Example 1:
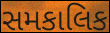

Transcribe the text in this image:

સમકાલિક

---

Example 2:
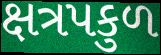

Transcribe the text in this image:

ક્ષત્રપકુળ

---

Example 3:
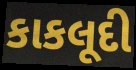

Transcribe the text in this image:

કાકલૂદી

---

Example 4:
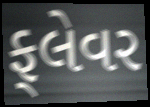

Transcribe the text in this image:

ફ્‌લેવર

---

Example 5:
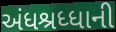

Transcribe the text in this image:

અંધશ્રધ્ધાની